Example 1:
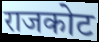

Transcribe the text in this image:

राजकोट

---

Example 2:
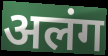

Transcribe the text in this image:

अलंग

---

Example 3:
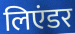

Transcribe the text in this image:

लिएंडर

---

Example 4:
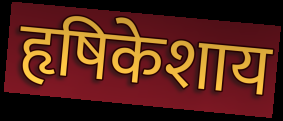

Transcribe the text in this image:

हृषिकेशाय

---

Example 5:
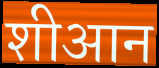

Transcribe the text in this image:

शीआन